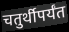
चतुर्थीपर्यंत